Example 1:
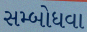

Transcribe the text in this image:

સમ્બોધવા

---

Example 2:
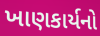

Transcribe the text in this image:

ખાણકાર્યનો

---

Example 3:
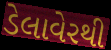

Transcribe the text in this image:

ડેલાવેરથી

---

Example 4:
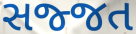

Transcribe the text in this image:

સજ્જત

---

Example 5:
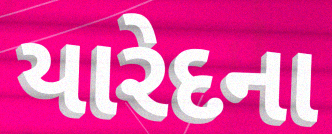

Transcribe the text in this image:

યારેદના